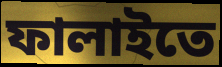
ফালাইতে